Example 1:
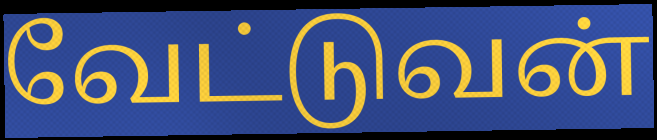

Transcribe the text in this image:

வேட்டுவன்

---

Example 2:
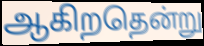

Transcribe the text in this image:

ஆகிறதென்று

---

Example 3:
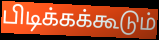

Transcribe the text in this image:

பிடிக்கக்கூடும்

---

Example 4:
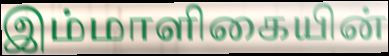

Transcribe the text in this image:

இம்மாளிகையின்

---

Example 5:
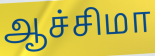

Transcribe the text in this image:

ஆச்சிமா